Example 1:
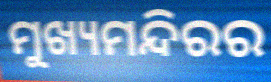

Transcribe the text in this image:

ମୁଖ୍ୟମନ୍ଦିରର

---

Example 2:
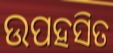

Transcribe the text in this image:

ଉପହସିତ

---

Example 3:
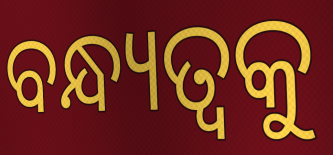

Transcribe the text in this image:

ବନ୍ଧ୍ୟତ୍ୱକୁ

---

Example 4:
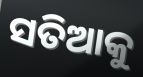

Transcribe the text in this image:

ସତିଆକୁ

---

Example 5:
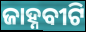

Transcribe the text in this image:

ଜାହ୍ନବୀଟି